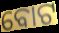
ବୋଟ